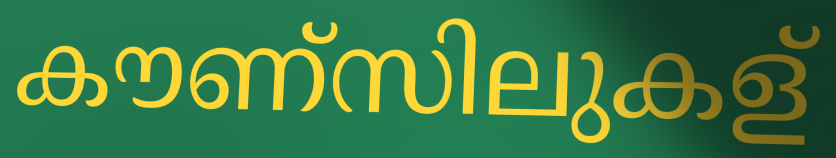
കൗണ്സിലുകള്